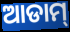
ଆଡାମ୍